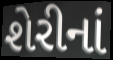
શેરીનાં